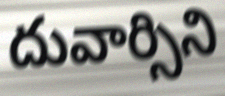
దువార్సిని